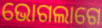
ଭୋଗଲାଗେ